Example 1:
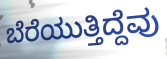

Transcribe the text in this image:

ಬೆರೆಯುತ್ತಿದ್ದೆವು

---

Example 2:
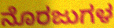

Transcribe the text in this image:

ನೊರಜುಗಳ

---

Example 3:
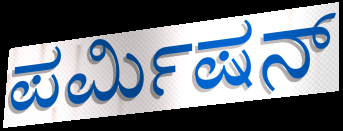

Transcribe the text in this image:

ಪರ್ಮಿಷನ್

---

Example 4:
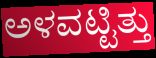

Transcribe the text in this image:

ಅಳವಟ್ಟಿತ್ತು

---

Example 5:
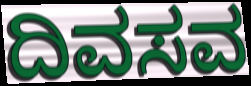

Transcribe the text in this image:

ದಿವಸವ